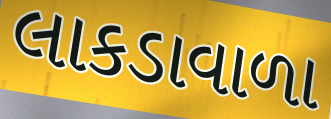
લાકડાવાળા